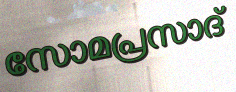
സോമപ്രസാദ്